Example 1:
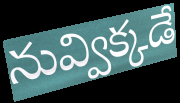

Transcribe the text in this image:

నువ్విక్కడే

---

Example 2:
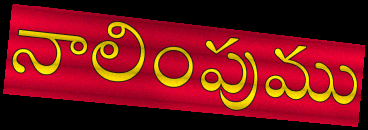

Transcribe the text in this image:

నాలింపుము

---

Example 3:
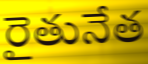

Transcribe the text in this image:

రైతునేత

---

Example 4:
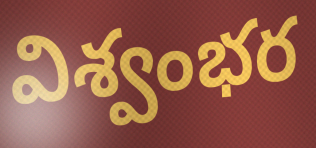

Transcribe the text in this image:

విశ్వంభర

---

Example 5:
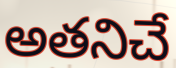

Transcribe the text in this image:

అతనిచే